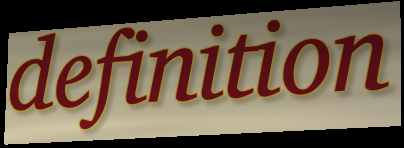
definition